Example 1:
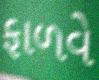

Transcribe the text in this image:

ફાળવે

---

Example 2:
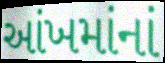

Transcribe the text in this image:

આંખમાંનાં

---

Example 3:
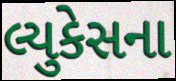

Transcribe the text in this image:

લ્યુકેસના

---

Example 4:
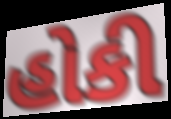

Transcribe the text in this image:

હોકી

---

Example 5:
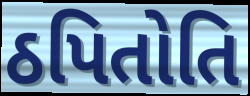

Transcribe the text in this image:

ઠપિતોતિ